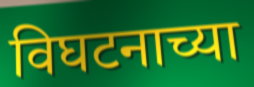
विघटनाच्या